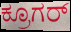
ಕ್ರೂಗರ್